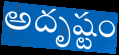
అదృష్టం